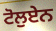
ਟੋਲੁਏਨ